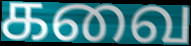
கவை